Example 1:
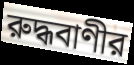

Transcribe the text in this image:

রুদ্ধবাণীর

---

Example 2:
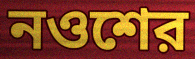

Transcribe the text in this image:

নওশের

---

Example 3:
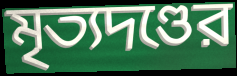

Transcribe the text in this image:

মৃত্যদণ্ডের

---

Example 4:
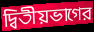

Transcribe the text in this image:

দ্বিতীয়ভাগের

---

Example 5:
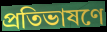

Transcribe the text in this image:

প্রতিভাষণে